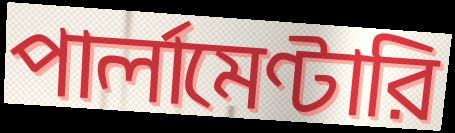
পার্লামেণ্টারি